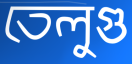
তেলুগু